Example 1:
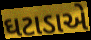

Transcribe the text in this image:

ઘટાડાએ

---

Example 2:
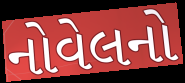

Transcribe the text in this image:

નોવેલનો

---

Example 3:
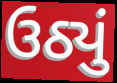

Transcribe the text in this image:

ઉઠ્યું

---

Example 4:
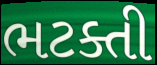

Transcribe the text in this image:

ભટક્તી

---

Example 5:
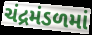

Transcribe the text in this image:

ચંદ્રમંડળમાં